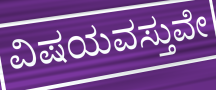
ವಿಷಯವಸ್ತುವೇ